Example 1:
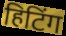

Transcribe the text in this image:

हिटिंग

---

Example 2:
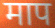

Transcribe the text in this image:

माप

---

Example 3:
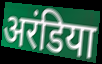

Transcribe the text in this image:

अरंडिया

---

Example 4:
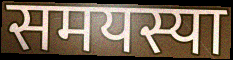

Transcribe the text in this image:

समयस्या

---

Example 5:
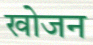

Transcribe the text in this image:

खोजन